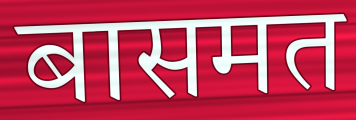
बासमत